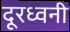
दूरध्वनी